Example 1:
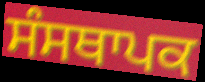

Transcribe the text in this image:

ਸੰਸਥਾਪਕ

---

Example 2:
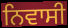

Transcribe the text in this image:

ਨਿਵਾਸੀ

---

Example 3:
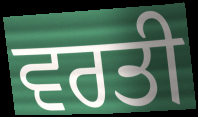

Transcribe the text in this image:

ਵਰਤੀ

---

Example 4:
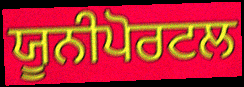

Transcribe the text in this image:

ਯੂਨੀਪੋਰਟਲ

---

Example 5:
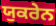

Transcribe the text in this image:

ਯੁਕਰੇਨ